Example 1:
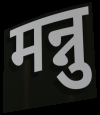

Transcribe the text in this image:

मन्नु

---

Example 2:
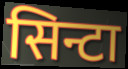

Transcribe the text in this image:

सिन्टा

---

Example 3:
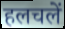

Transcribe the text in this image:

हलचलें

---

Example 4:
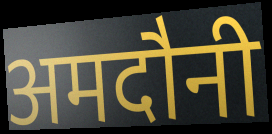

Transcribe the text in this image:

अमदौनी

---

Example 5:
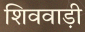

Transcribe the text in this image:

शिववाड़ी